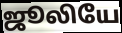
ஜூலியே